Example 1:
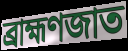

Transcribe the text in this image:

ব্রাহ্মণজাত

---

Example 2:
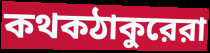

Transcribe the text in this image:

কথকঠাকুরেরা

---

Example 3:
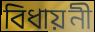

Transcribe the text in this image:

বিধায়নী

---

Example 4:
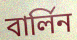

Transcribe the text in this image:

বার্লিন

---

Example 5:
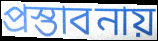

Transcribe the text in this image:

প্রস্তাবনায়